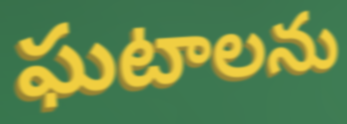
ఘటాలను